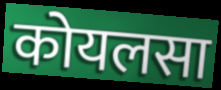
कोयलसा